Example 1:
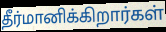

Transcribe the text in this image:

தீர்மானிக்கிறார்கள்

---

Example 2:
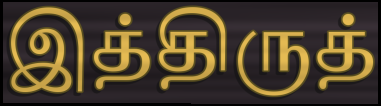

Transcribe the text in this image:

இத்திருத்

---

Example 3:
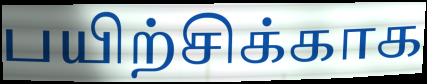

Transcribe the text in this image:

பயிற்சிக்காக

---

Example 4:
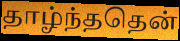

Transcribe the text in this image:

தாழ்ந்ததென்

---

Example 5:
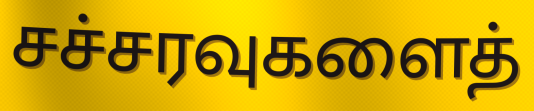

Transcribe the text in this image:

சச்சரவுகளைத்